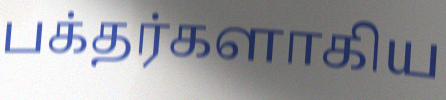
பக்தர்களாகிய